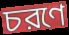
চরণে